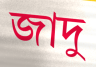
জাদু